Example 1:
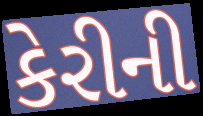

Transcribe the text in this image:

કેરીની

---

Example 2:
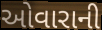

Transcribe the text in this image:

ઓવારાની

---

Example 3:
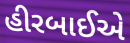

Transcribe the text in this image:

હીરબાઈએ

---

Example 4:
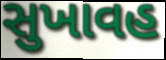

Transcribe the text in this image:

સુખાવહ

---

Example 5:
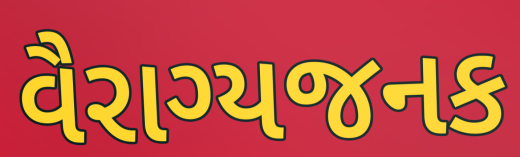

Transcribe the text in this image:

વૈરાગ્યજનક